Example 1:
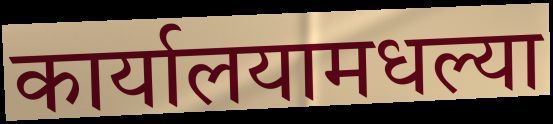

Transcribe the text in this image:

कार्यालयामधल्या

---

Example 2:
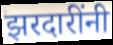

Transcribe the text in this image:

झरदारींनी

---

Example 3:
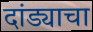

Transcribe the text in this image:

दांड्याचा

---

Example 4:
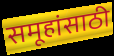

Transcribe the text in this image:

समूहांसाठी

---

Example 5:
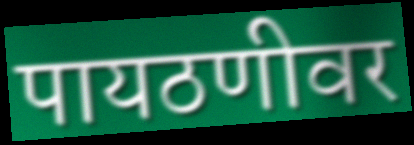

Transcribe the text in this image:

पायठणीवर